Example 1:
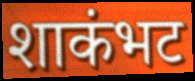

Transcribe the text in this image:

शाकंभट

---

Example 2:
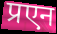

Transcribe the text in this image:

प्रएन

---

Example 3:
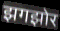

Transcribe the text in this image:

झगझोर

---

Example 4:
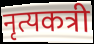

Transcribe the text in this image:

नृत्यकत्री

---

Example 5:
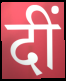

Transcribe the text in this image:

दीं